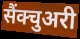
सैंक्चुअरी